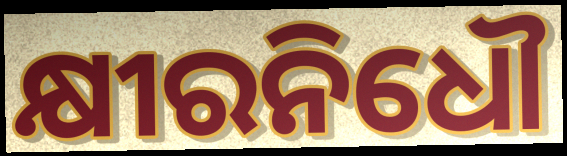
କ୍ଷୀରନିଧୌ